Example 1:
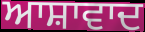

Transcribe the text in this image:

ਆਸ਼ਾਵਾਦ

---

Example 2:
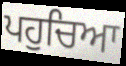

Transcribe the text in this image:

ਪਹੁਚਿਆ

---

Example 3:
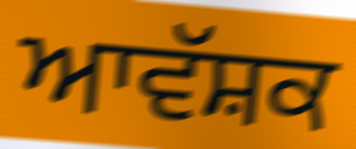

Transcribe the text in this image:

ਆਵੱਸ਼ਕ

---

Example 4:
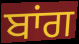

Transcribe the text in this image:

ਬਾਂਗ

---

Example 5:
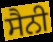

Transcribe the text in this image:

ਸੈਨੀ